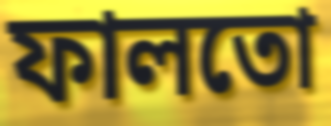
ফালতো